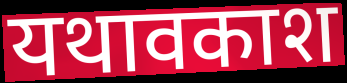
यथावकाश